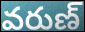
వరుణ్